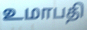
உமாபதி